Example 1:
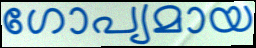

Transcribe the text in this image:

ഗോപ്യമായ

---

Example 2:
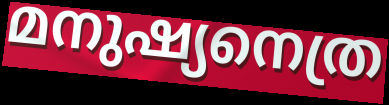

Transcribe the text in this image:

മനുഷ്യനെത്ര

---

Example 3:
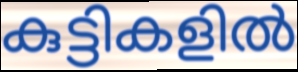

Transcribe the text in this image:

കുട്ടികളിൽ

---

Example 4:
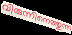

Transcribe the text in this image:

വിരുന്നിനെത്തുന്ന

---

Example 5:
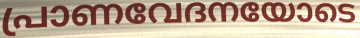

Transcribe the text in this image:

പ്രാണവേദനയോടെ